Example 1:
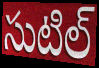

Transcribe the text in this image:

సుటిల్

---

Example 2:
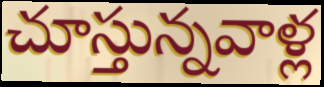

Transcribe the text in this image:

చూస్తున్నవాళ్ల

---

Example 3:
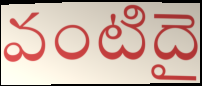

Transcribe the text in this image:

వంటిదై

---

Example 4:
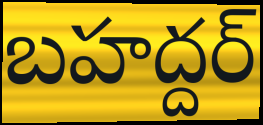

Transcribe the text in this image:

బహద్దర్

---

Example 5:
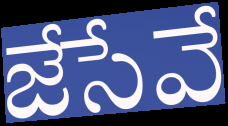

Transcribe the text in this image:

జేసేవే